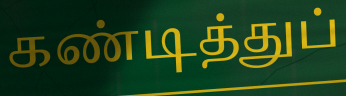
கண்டித்துப்